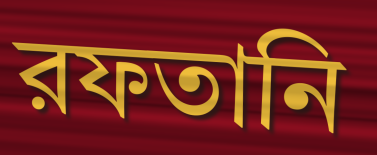
রফতানি